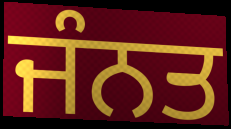
ਜੰਨਤ